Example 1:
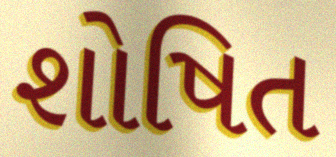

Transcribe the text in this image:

શોષિત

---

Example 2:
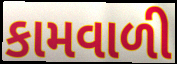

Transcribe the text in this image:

કામવાળી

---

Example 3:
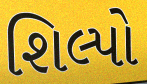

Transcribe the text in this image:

શિલ્પો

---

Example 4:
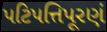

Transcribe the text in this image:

પટિપત્તિપૂરણં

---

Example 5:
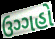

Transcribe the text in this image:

ઉગ્ગહો